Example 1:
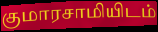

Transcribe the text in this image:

குமாரசாமியிடம்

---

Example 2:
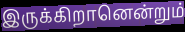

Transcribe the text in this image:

இருக்கிறானென்றும்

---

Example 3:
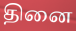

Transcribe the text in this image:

தினை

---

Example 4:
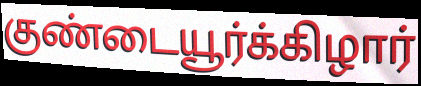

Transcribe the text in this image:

குண்டையூர்க்கிழார்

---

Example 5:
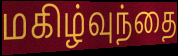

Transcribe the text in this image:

மகிழ்வுந்தை